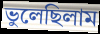
ভুলেছিলাম